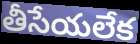
తీసేయలేక